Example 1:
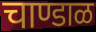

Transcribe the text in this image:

चाण्डाळ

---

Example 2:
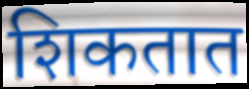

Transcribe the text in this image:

शिकतात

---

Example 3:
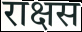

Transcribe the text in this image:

राक्षस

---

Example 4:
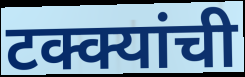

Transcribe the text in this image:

टक्क्यांची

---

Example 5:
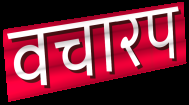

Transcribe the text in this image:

वचारप